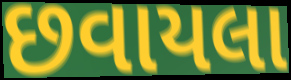
છવાયલા